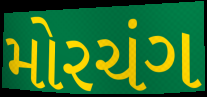
મોરચંગ